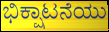
ಭಿಕ್ಷಾಟನೆಯು